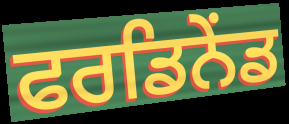
ਫਰਡਿਨੇਂਡ